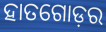
ହାତଗୋଡ଼ର